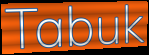
Tabuk